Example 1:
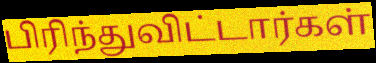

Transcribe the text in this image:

பிரிந்துவிட்டார்கள்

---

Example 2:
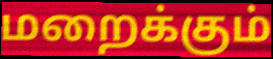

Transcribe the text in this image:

மறைக்கும்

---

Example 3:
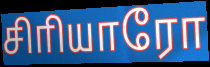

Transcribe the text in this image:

சிரியாரோ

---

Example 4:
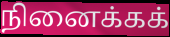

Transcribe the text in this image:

நினைக்கக்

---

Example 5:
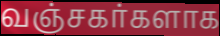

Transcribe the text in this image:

வஞ்சகர்களாக